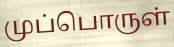
முப்பொருள்